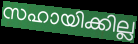
സഹായിക്കില്ല